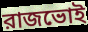
রাজভোই